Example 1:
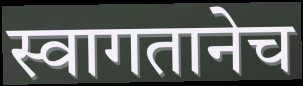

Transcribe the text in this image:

स्वागतानेच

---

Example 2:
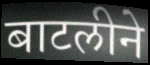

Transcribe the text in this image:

बाटलीने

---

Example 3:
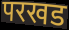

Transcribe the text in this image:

परखड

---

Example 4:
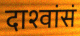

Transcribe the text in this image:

दाश्वांसं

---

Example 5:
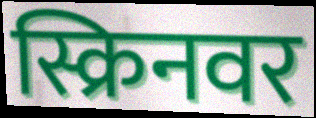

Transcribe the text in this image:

स्क्रिनवर